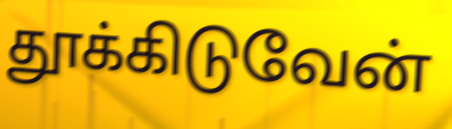
தூக்கிடுவேன்